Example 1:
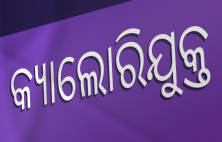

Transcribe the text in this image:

କ୍ୟାଲୋରିଯୁକ୍ତ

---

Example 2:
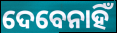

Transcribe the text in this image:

ଦେବେନାହିଁ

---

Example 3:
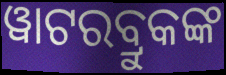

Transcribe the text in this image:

ୱାଟରବ୍ରୁକଙ୍କ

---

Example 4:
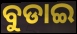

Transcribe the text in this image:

ବୁଡାଇ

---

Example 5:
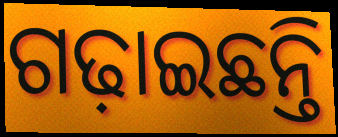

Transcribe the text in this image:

ଗଢ଼ାଇଛନ୍ତି